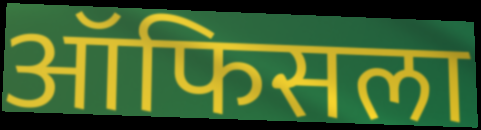
ऑफिसला